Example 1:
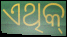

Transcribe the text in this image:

ଏଥିକ୍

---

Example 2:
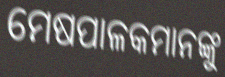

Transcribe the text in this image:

ମେଷପାଳକମାନଙ୍କୁ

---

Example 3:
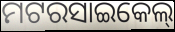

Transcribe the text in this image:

ମଟରସାଇକେଲ୍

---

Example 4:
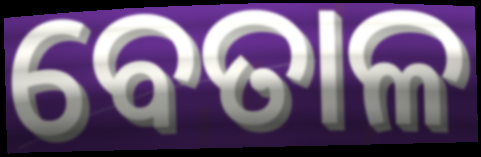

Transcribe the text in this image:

ବେତାଳ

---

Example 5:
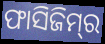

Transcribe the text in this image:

ଫାସିଜିମ୍‌ର